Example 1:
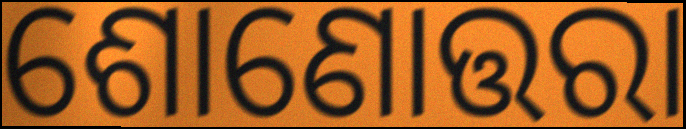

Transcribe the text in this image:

ଶୋଣୋତ୍ତରା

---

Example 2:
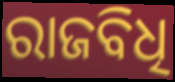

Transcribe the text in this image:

ରାଜବିଧି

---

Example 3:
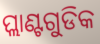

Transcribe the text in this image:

ପ୍ଲାଣ୍ଟଗୁଡିକ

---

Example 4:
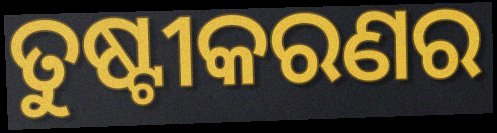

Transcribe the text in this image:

ତୁଷ୍ଟୀକରଣର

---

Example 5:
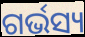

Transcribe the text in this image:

ଗର୍ଭସ୍ୟ